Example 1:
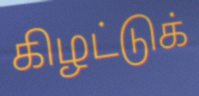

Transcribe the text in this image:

கிழட்டுக்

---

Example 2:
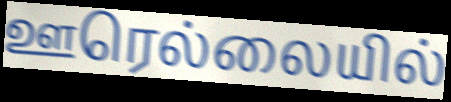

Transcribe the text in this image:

ஊரெல்லையில்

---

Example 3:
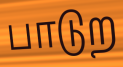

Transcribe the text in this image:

பாடுற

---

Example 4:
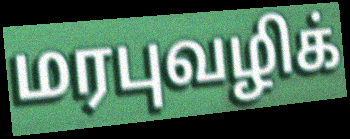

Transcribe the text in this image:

மரபுவழிக்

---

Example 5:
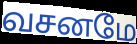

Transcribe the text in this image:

வசனமே